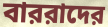
বাররাদের